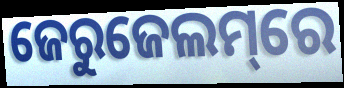
ଜେରୁଜେଲମ୍‌ରେ